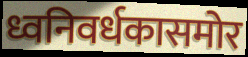
ध्वनिवर्धकासमोर